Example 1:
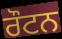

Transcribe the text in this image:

ਰੌਟਨ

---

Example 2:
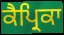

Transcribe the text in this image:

ਕੈਪ੍ਰਿਕਾ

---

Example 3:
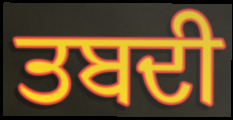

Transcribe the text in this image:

ਤਬਦੀ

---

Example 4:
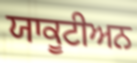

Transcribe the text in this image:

ਯਾਕੂਟੀਅਨ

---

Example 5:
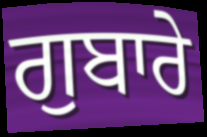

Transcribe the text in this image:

ਗੁਬਾਰੇ